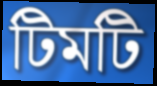
টিমটি